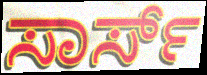
ಸಾರ್ಸ್